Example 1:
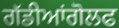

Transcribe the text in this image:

ਗੱਡੀਆਂਗੋਲਫ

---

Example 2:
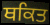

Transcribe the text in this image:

ਥਕਿਤ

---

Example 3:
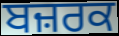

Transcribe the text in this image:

ਬਜ਼ਰਕ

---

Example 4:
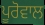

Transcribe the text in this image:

ਪੂਰੋਵਾਲ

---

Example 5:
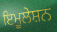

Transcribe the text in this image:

ਇਮੂਲੇਸ਼ਨ